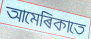
আমেৰিকাতে